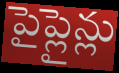
పైప్లైన్లు